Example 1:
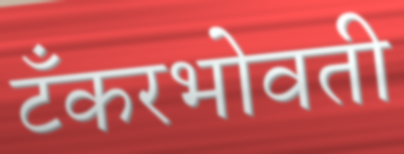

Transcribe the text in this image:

टँकरभोवती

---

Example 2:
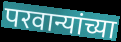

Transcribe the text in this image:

परवान्यांच्या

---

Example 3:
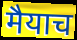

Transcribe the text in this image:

मैयाच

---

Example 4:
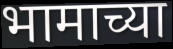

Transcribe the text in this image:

भामाच्या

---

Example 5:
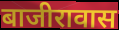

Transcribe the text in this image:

बाजीरावास